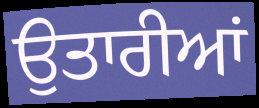
ਉਤਾਰੀਆਂ